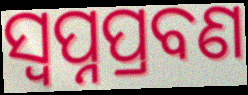
ସ୍ଵପ୍ନପ୍ରବଣ